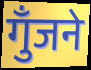
गुँजने